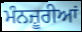
ਮੰਨਜ਼ੂਰੀਆਂ